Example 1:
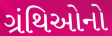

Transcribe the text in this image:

ગ્રંથિઓનો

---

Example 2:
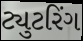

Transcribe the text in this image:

ટ્યુટરિંગ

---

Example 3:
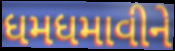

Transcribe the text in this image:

ધમધમાવીને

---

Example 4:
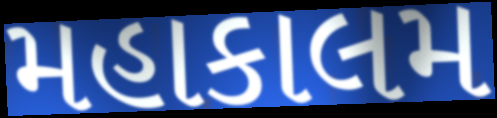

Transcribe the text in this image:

મહાકાલમ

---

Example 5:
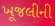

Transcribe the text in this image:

ખૂજલીની